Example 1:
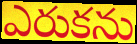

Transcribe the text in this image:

ఎరుకను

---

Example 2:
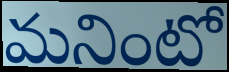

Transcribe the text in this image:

మనింటో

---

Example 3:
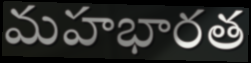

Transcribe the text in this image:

మహభారత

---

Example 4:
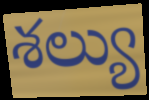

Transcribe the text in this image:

శల్యు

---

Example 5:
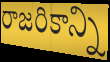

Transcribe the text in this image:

రాజరికాన్ని